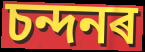
চন্দনৰ